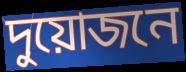
দুয়োজনে